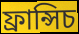
ফ্ৰান্সিচ